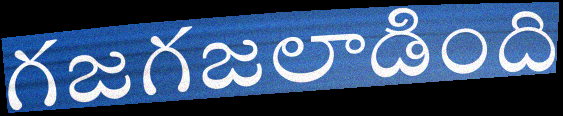
గజగజలాడింది